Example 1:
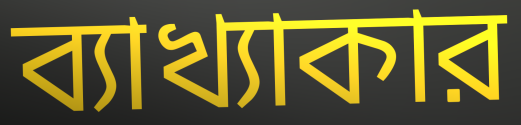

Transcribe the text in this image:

ব্যাখ্যাকার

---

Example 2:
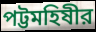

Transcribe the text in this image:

পট্টমহিষীর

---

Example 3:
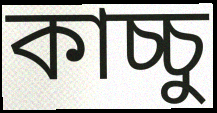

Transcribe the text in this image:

কাচ্চু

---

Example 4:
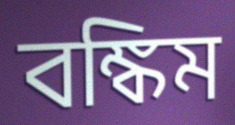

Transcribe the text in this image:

বঙ্কিম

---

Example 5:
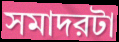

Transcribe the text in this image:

সমাদরটা